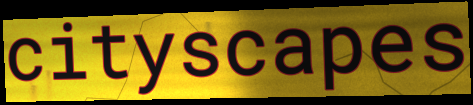
cityscapes